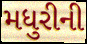
મધુરીની